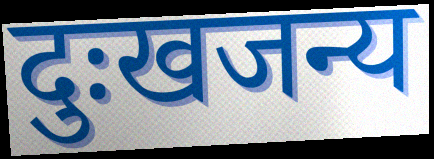
दुःखजन्य